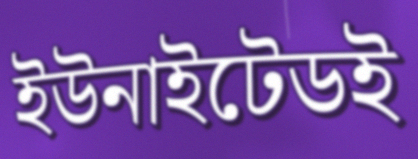
ইউনাইটেডই